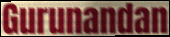
Gurunandan